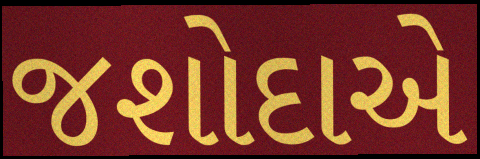
જશોદાએ